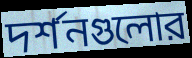
দর্শনগুলোর